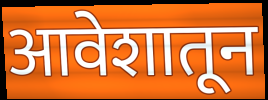
आवेशातून